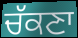
ਚੱਕਣਾ